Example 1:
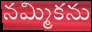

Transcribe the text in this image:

నమ్మికను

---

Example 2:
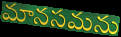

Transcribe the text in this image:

మానసమను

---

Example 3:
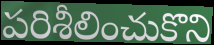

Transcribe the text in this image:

పరిశీలించుకొని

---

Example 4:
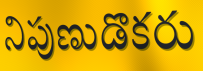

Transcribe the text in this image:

నిపుణుడొకరు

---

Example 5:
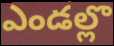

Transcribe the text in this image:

ఎండల్లొ